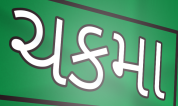
ચકમા